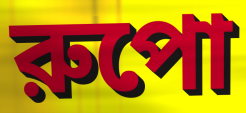
রুপো